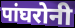
पांघरोनी